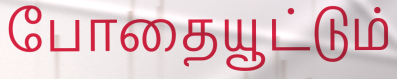
போதையூட்டும்